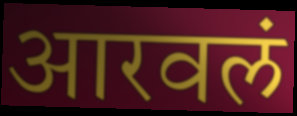
आरवलं